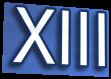
XIII